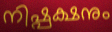
നിഷ്പക്ഷനും